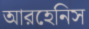
আরহেনিস